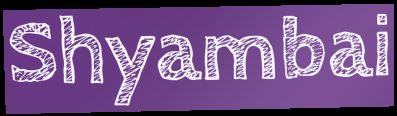
Shyambai